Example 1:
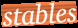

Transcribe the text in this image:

stables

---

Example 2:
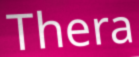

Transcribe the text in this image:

Thera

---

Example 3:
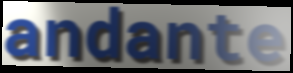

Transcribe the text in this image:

andante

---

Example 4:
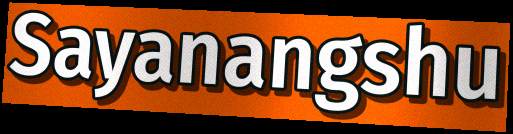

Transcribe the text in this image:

Sayanangshu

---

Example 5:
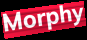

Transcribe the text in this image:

Morphy